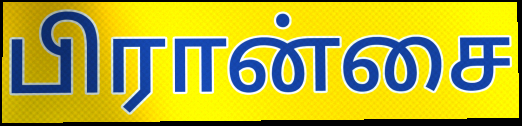
பிரான்சை